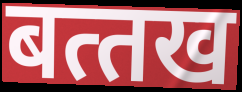
बत्‍तख